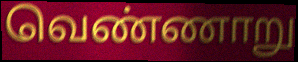
வெண்ணாறு